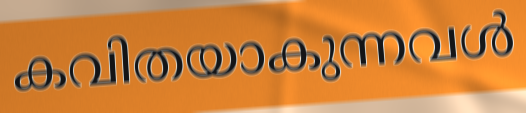
കവിതയാകുന്നവൾ